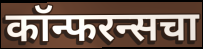
कॉन्फरन्सचा